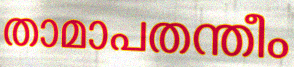
താമാപതന്തീം